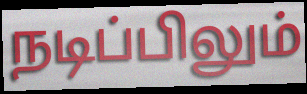
நடிப்பிலும்